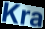
Kra